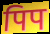
पिप